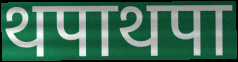
थपाथपा